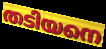
തടിയനെ